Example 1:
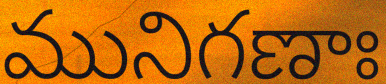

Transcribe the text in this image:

మునిగణాః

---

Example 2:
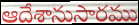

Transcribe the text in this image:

ఆదేశానుసారము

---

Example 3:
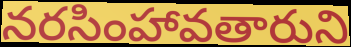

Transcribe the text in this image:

నరసింహావతారుని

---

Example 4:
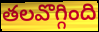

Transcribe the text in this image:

తలవొగ్గింది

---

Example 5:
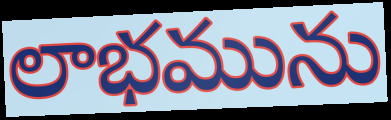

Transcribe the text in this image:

లాభమును